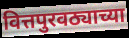
वित्तपुरवठ्याच्या